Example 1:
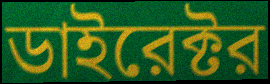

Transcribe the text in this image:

ডাইরেক্টর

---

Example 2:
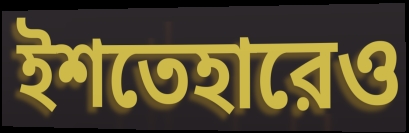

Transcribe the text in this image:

ইশতেহারেও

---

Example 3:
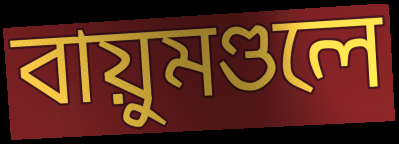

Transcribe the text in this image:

বায়ুমণ্ডলে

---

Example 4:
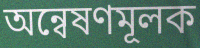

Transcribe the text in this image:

অন্বেষণমূলক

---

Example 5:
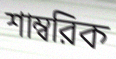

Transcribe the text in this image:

শাম্বরিক